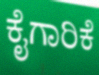
ಕೈಗಾರಿಕೆ